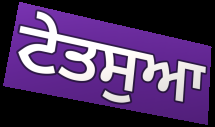
ਟੇਤਸੁਆ